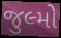
જુલ્મો